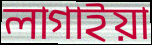
লাগাইয়া